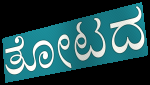
ತೋಟದ